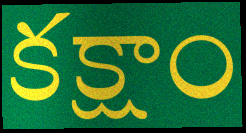
కక్షాం